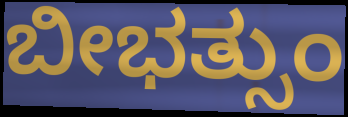
ಬೀಭತ್ಸುಂ